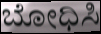
ಬೋಧಿಸಿ